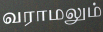
வராமலும்